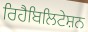
ਰਿਹੈਬਿਲਿਟੇਸ਼ਨ